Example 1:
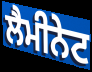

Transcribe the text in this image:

ਲੈਮੀਨੇਟ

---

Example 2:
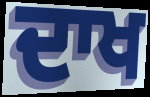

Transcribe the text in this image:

ਦਾਖ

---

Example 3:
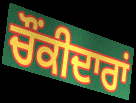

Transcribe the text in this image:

ਚੌਂਕੀਦਾਰਾਂ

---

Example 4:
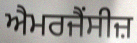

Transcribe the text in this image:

ਐਮਰਜੈਂਸੀਜ਼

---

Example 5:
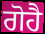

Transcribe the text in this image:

ਗੋਹੈ